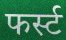
फर्स्ट